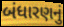
બંધારણનું